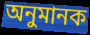
অনুমানক